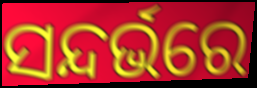
ସନ୍ଦର୍ଭରେ